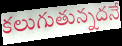
కలుగుతున్నదనే